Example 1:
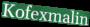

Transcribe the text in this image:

Kofexmalin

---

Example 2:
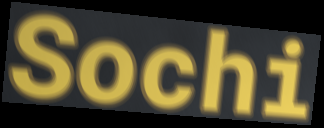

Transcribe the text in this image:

Sochi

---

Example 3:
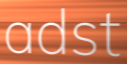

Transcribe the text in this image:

adst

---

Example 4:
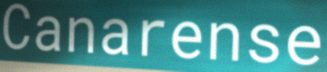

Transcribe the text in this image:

Canarense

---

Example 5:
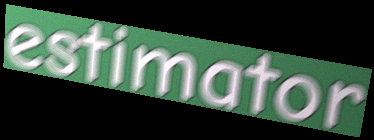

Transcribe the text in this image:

estimator